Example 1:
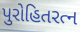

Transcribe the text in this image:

પુરોહિતરત્ન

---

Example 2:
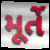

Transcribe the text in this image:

મૂર્તે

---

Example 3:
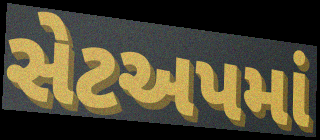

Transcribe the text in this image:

સેટઅપમાં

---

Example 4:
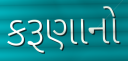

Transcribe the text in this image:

કરૂણાનો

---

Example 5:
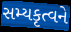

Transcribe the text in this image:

સમ્યકૃત્વને